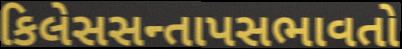
કિલેસસન્તાપસભાવતો